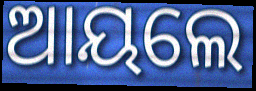
ଆୟଲେ